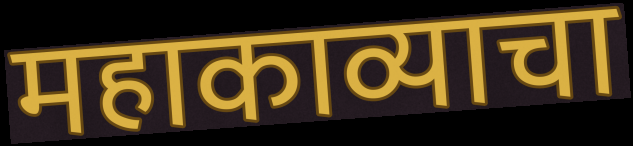
महाकाव्याचा